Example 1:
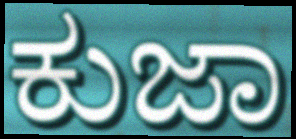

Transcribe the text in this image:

ಕುಜಾ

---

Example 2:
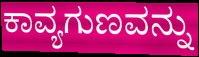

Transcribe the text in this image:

ಕಾವ್ಯಗುಣವನ್ನು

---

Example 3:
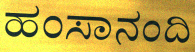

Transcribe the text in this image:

ಹಂಸಾನಂದಿ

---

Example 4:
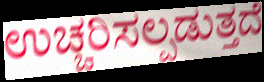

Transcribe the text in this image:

ಉಚ್ಚರಿಸಲ್ಪಡುತ್ತದೆ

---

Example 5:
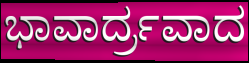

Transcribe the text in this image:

ಭಾವಾರ್ದ್ರವಾದ